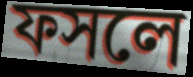
ফসলে